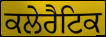
ਕਲੇਰੈਟਿਕ